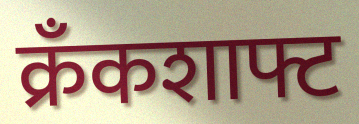
क्रँकशाफ्ट